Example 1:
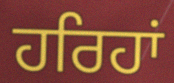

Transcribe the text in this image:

ਹਰਿਹਾਂ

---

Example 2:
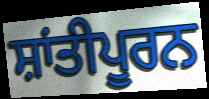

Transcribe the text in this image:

ਸ਼ਾਂਤੀਪੂਰਨ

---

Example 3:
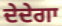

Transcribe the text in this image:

ਦੇਦੇਗਾ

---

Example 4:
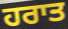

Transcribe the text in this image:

ਹਰਾਤ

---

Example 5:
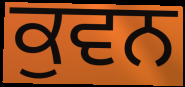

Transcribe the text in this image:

ਕੁਵਨ